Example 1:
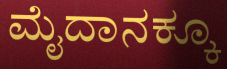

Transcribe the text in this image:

ಮೈದಾನಕ್ಕೂ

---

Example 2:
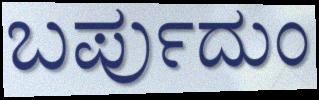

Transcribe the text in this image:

ಬರ್ಪುದುಂ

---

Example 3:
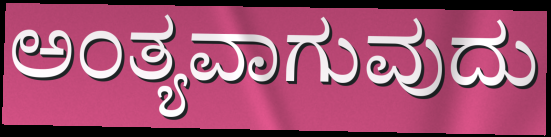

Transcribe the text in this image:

ಅಂತ್ಯವಾಗುವುದು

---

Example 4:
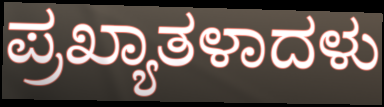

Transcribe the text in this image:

ಪ್ರಖ್ಯಾತಳಾದಳು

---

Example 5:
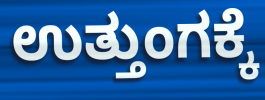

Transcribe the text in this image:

ಉತ್ತುಂಗಕ್ಕೆ